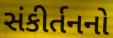
સંકીર્તનનો